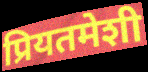
प्रियतमेशी